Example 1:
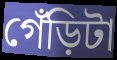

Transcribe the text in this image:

গেঁড়িটা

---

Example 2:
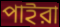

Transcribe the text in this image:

পাইরা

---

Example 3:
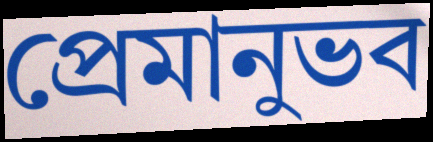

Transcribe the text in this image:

প্রেমানুভব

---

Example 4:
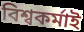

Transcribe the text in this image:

বিশ্বকর্মাই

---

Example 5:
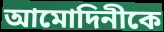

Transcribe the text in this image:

আমোদিনীকে